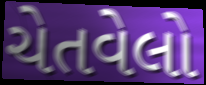
ચેતવેલો